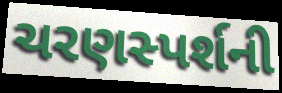
ચરણસ્પર્શની